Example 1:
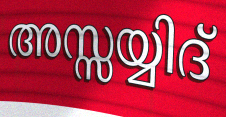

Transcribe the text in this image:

അസ്സയ്യിദ്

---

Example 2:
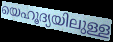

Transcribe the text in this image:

യെഹൂദ്യയിലുള്ള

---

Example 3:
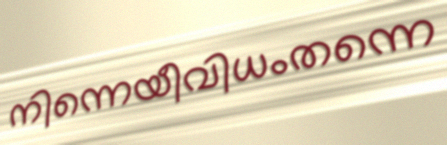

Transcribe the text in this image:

നിന്നെയീവിധംതന്നെ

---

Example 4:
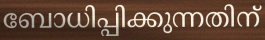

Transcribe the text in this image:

ബോധിപ്പിക്കുന്നതിന്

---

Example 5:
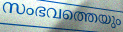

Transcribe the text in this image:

സംഭവത്തെയും